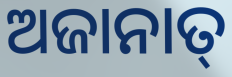
ଅଜାନାତ୍